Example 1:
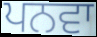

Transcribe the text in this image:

ਪਨਵਾ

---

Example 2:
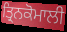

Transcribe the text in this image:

ਤ੍ਰਿਨਕੋਮਾਲੀ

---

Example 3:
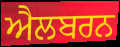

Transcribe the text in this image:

ਐਲਬਰਨ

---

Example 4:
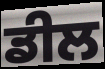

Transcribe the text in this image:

ਡੀਲ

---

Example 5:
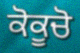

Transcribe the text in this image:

ਕੋਕੂਚੋ